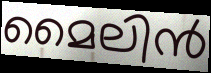
മൈലിൻ